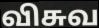
விசுவ